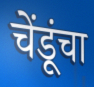
चेंडूंचा